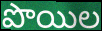
పొయిల